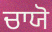
ਚਾਯੋ